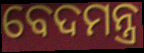
ବେଦମନ୍ତ୍ର